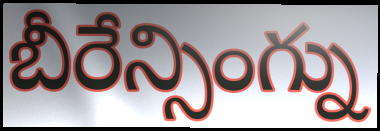
బీరేన్సింగ్ను